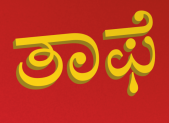
ತಾಫೆ